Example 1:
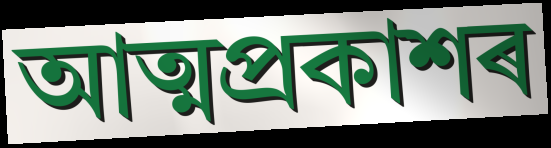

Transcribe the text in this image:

আত্মপ্ৰকাশৰ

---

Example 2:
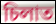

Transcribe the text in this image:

চিলাত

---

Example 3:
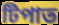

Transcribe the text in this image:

টিপাত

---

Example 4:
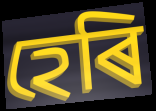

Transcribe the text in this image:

হেৰি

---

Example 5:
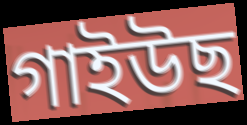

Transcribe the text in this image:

গাইউছ